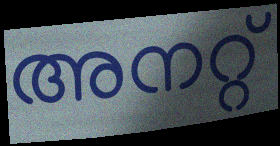
അനറ്റ്